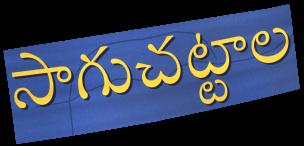
సాగుచట్టాల